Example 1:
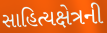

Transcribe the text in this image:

સાહિત્યક્ષેત્રની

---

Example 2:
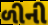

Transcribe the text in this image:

ળીની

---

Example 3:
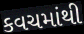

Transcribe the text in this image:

કવચમાંથી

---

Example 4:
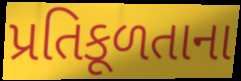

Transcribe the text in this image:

પ્રતિકૂળતાના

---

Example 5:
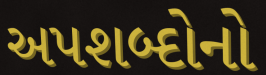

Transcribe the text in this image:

અપશબ્દોનો